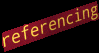
referencing